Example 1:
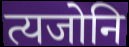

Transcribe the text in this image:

त्यजोनि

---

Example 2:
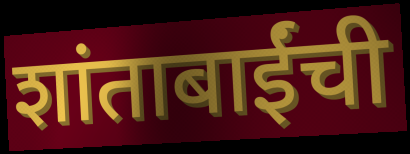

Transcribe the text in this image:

शांताबाईंची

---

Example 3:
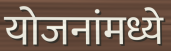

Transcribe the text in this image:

योजनांमध्ये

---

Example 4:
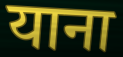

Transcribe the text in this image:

याना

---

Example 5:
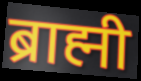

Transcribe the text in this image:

ब्राह्मी